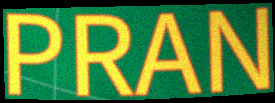
PRAN